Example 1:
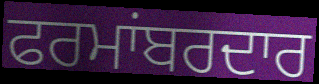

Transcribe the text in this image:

ਫਰਮਾਂਬਰਦਾਰ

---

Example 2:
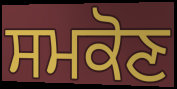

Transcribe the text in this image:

ਸਮਕੋਣ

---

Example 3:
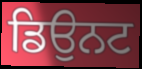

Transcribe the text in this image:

ਡਿਉਨਟ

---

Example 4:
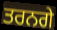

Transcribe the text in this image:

ਤਰਨਗੇ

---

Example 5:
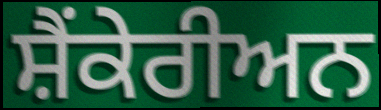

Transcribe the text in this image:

ਸ਼ੈਂਕੇਰੀਅਨ